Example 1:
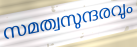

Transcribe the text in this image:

സമത്വസുന്ദരവും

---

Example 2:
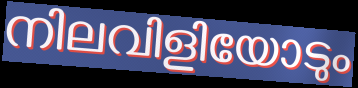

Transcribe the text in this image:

നിലവിളിയോടും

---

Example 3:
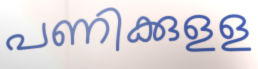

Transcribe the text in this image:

പണിക്കുളള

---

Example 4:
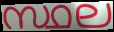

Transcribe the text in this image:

സ്ഥല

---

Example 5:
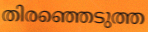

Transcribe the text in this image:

തിരഞ്ഞെടുത്ത